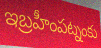
ఇబ్రహీంపట్నంకు